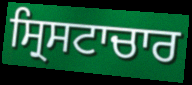
ਸ੍ਰਿਸਟਾਚਾਰ